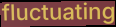
fluctuating